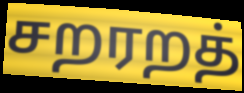
சறரறத்